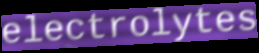
electrolytes